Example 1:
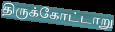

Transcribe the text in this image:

திருக்கோட்டாறு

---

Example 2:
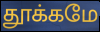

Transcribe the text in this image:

தூக்கமே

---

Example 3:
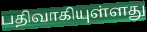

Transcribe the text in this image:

பதிவாகியுள்ளது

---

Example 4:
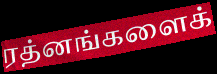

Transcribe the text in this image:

ரத்னங்களைக்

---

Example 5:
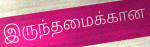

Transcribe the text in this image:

இருந்தமைக்கான